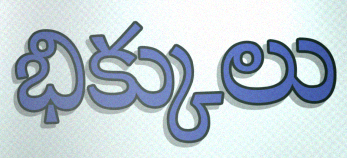
భిక్కులు